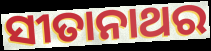
ସୀତାନାଥର